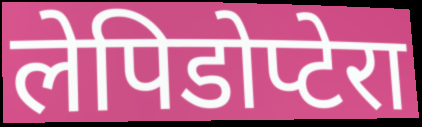
लेपिडोप्टेरा